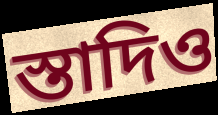
স্তাদিও